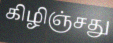
கிழிஞ்சது